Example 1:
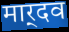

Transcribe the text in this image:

मार्दव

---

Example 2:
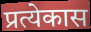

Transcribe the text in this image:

प्रत्येकास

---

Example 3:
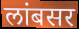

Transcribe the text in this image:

लांबसर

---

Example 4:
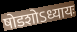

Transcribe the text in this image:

षोडशोऽध्यायः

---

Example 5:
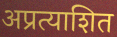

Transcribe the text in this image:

अप्रत्याशित